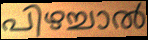
പിഴച്ചാൽ